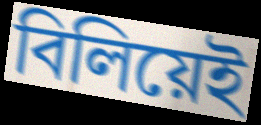
বিলিয়েই